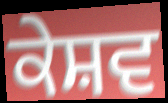
ਕੇਸ਼ਵ